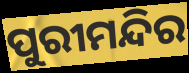
ପୁରୀମନ୍ଦିର